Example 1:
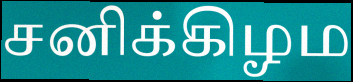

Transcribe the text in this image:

சனிக்கிழம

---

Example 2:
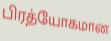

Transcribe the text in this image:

பிரத்யோகமான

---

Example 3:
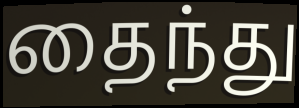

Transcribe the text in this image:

தைந்து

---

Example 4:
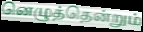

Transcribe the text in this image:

னெழுத்தென்றும்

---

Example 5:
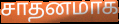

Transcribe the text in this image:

சாதனமாக